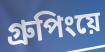
গ্রুপিংয়ে